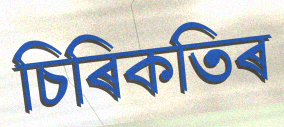
চিৰিকতিৰ